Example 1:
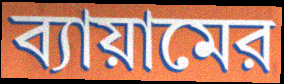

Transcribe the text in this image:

ব্যায়ামের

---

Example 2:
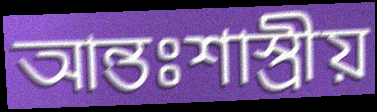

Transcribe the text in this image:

আন্তঃশাস্ত্রীয়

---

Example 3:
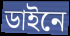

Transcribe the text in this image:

ডাইনে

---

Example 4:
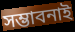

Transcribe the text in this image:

সম্ভাবনাই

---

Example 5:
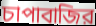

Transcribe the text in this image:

চাপাবাজির